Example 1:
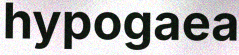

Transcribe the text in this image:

hypogaea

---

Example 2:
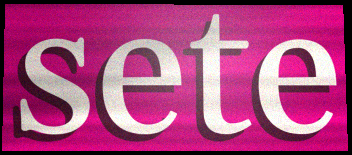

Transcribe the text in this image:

sete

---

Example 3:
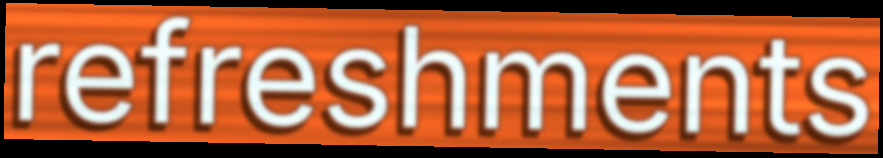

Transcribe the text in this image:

refreshments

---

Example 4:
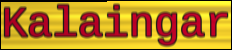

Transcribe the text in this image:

Kalaingar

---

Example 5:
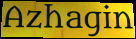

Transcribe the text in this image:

Azhagin